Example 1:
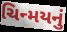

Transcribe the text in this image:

ચિન્મયનું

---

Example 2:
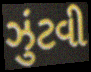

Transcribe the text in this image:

ઝુંટવી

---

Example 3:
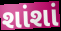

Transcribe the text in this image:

શાંશાં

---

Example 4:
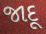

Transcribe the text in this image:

જાદૂ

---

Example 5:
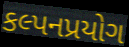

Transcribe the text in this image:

કલ્પનપ્રયોગ